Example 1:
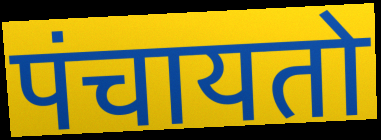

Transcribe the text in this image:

पंचायतो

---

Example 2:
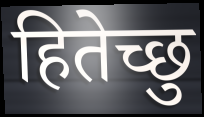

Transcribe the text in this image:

हितेच्छु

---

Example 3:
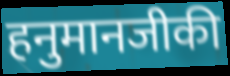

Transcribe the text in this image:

हनुमानजीकी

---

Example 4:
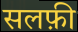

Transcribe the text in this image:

सलफ़ी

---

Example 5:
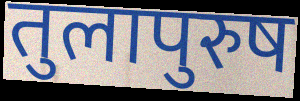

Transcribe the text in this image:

तुलापुरुष